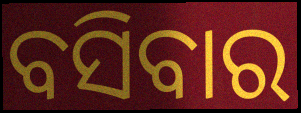
ବସିବାର